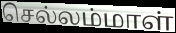
செல்லம்மாள்